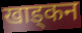
खाड्कन